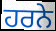
ਹਰਨੇ